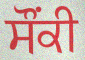
ਸੌਂਕੀ